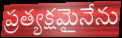
ప్రత్యక్షమైనేను